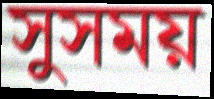
সুসময়